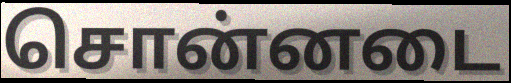
சொன்னடை